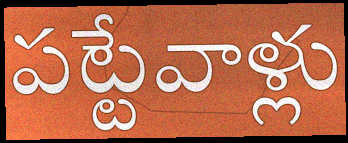
పట్టేవాళ్లు